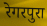
रेगरपुरा